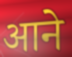
आने